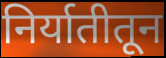
निर्यातीतून